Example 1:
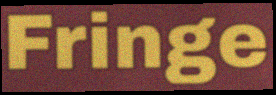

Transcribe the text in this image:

Fringe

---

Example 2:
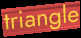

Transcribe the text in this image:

triangle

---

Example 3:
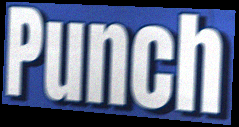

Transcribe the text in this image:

Punch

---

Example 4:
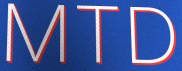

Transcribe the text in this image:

MTD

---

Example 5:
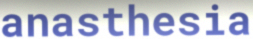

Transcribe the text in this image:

anasthesia